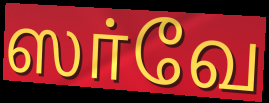
ஸர்வே